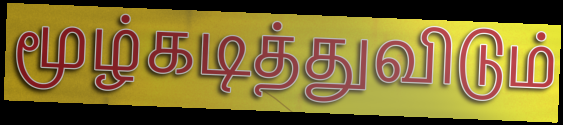
மூழ்கடித்துவிடும்